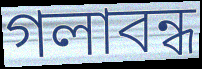
গলাবন্ধ